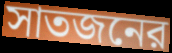
সাতজনের